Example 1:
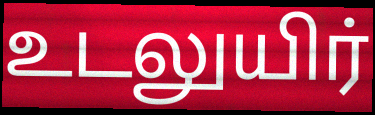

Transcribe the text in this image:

உடலுயிர்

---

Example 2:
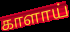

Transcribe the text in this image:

காளாய்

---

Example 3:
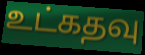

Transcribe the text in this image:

உட்கதவு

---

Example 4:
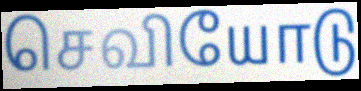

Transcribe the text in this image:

செவியோடு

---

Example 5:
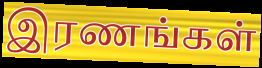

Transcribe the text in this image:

இரணங்கள்